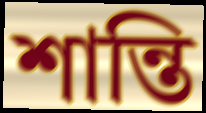
শান্তি